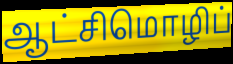
ஆட்சிமொழிப்